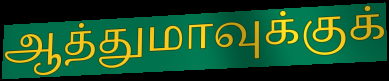
ஆத்துமாவுக்குக்